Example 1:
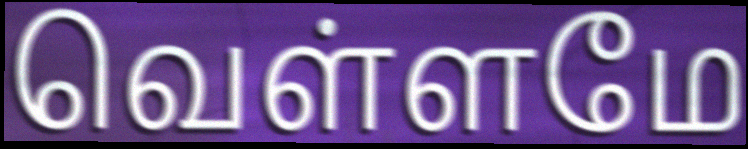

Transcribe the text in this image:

வெள்ளமே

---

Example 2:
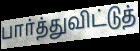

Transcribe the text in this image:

பார்த்துவிட்டுத்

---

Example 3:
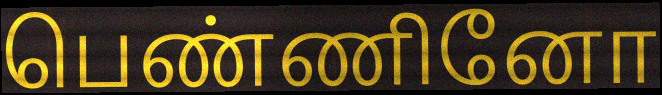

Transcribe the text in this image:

பெண்ணினோ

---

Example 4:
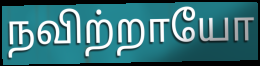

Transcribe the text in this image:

நவிற்றாயோ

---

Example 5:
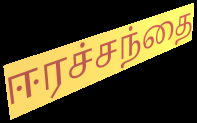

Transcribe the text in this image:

ஈரச்சந்தை